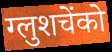
ग्लुशचेंको